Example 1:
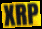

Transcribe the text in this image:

XRP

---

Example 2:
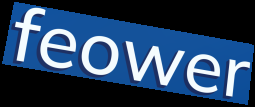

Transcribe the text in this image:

feower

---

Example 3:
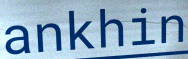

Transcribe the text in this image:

ankhin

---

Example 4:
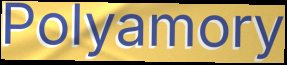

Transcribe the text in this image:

Polyamory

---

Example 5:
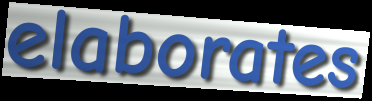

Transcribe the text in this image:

elaborates